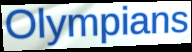
Olympians